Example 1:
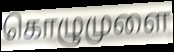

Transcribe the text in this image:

கொழுமுளை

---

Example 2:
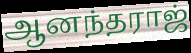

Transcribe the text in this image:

ஆனந்தராஜ்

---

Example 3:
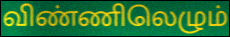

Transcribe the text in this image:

விண்ணிலெழும்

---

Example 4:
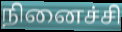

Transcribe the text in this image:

நினைச்சி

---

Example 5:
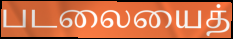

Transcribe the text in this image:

படலையைத்